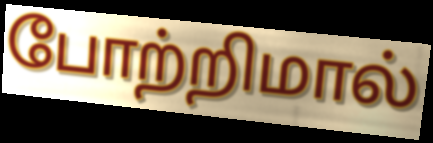
போற்றிமால்